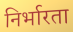
निर्भारता